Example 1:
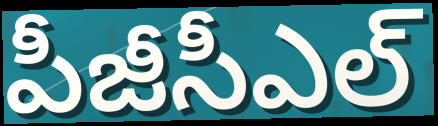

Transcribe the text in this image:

పీజీసీఎల్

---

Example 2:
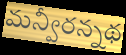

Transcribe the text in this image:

మన్వీరన్నథ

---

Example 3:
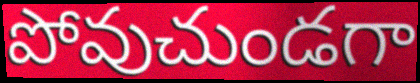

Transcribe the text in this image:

పోవుచుండగా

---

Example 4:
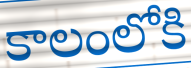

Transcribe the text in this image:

కాలంలోకి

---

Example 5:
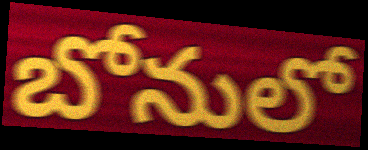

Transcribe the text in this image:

బోనులో